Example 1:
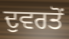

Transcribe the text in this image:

ਦੁਵਰਤੋਂ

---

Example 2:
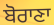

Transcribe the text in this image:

ਬੋਰਾਣਾ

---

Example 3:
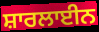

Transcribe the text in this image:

ਸ਼ਾਰਲਾਈਨ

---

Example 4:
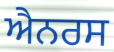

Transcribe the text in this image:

ਐਨਰਸ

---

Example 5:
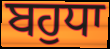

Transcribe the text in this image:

ਬਹੁਧਾ